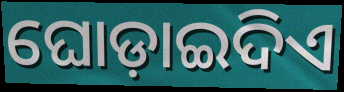
ଘୋଡ଼ାଇଦିଏ